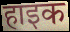
हाइक